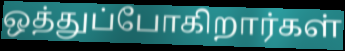
ஒத்துப்போகிறார்கள்